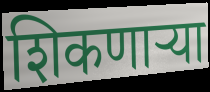
शिकणार्‍या